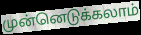
முன்னெடுக்கலாம்